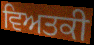
ਵਿਅਤਕੀ